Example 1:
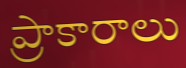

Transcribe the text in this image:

ప్రాకారాలు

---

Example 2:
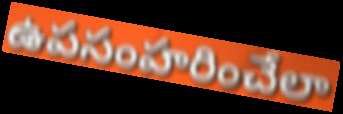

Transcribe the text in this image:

ఉపసంహరించేలా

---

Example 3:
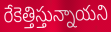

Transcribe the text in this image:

రేకెత్తిస్తున్నాయని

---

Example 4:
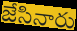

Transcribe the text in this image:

జేసినారు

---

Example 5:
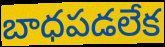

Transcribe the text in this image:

బాధపడలేక